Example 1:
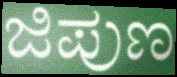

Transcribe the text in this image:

ಜಿಪುಣ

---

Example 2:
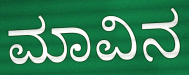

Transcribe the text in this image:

ಮಾವಿನ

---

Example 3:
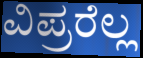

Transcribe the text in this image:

ವಿಪ್ರರೆಲ್ಲ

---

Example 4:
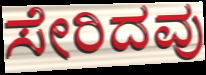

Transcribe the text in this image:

ಸೇರಿದವು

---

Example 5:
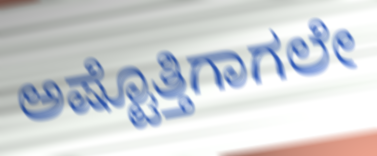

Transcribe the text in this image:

ಅಷ್ಟೊತ್ತಿಗಾಗಲೇ